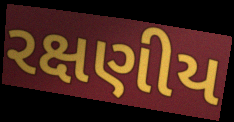
રક્ષણીય